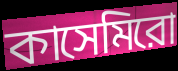
কাসেমিরো